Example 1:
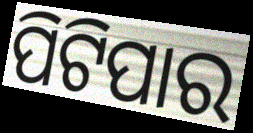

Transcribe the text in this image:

ପିଟିପାର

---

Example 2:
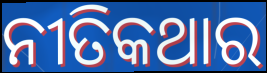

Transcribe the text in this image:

ନୀତିକଥାର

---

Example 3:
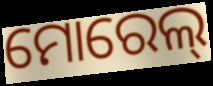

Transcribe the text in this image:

ମୋରେଲ୍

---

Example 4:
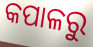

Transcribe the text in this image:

କପାଳରୁ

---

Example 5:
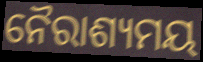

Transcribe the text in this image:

ନୈରାଶ୍ୟମୟ